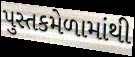
પુસ્તકમેળામાંથી